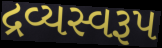
દ્રવ્યસ્વરૂપ